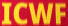
ICWF